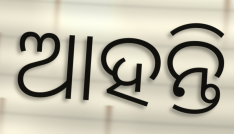
ଆହନ୍ତି